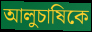
আলুচাষিকে